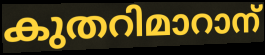
കുതറിമാറാന്